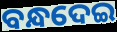
ବନ୍ଧଦେଇ